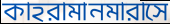
কাহরামানমারাসে